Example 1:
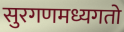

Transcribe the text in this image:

सुरगणमध्यगतो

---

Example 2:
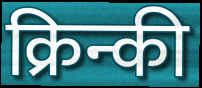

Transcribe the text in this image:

क्रिन्की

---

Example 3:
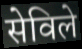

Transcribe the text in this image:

सेविले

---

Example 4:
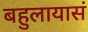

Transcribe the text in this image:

बहुलायासं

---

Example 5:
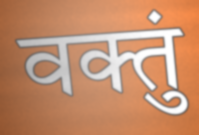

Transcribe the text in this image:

वक्तुं